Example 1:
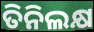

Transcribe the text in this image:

ତିନିଲକ୍ଷ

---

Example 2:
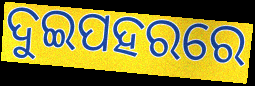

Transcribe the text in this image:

ଦୁଇପହରରେ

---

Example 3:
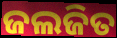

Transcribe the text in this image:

ଜଲଜିତ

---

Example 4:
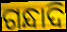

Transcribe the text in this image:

ଗନ୍ଧାଦି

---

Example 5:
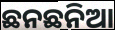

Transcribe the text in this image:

ଛନଛନିଆ